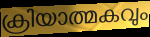
ക്രിയാത്മകവും